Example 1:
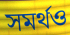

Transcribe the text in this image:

সমর্থও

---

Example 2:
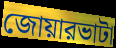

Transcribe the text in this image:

জোয়ারভাটা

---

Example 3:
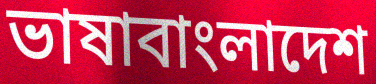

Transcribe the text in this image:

ভাষাবাংলাদেশ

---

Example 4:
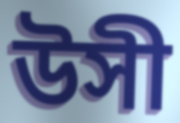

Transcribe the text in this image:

উসী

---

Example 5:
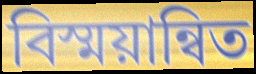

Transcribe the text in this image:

বিস্ময়ান্বিত